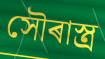
সৌৰাস্ত্ৰ